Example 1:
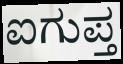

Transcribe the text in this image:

ಐಗುಪ್ತ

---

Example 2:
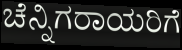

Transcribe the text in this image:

ಚೆನ್ನಿಗರಾಯರಿಗೆ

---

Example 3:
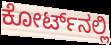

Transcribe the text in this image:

ಕೋರ್ಟ್‌ನಲ್ಲಿ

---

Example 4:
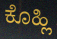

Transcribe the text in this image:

ಕೊಹ್ಲಿ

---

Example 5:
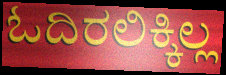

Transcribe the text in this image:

ಓದಿರಲಿಕ್ಕಿಲ್ಲ